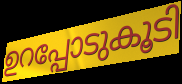
ഉറപ്പോടുകൂടി